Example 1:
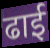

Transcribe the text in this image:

ढाई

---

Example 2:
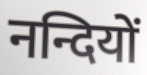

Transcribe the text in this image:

नन्दियों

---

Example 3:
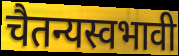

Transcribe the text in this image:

चैतन्यस्वभावी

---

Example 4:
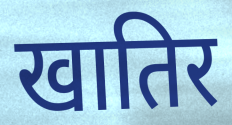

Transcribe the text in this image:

खातिर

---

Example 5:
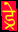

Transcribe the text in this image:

ड्रे